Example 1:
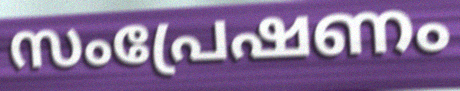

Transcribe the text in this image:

സംപ്രേഷണം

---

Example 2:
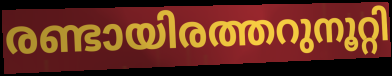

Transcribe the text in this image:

രണ്ടായിരത്തറുനൂറ്റി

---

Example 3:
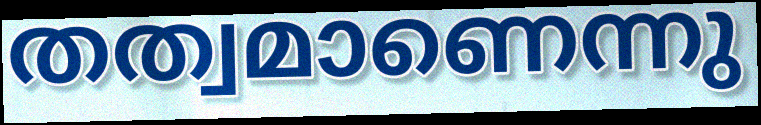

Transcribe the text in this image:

തത്വമാണെന്നു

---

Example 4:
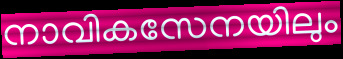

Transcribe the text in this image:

നാവികസേനയിലും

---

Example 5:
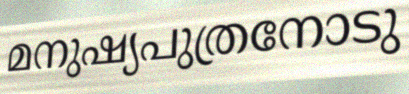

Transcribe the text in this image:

മനുഷ്യപുത്രനോടു